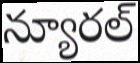
న్యూరల్